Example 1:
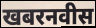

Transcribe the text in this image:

खबरनवीस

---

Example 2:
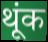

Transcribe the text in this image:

थूंक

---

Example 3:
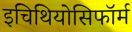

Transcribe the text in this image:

इचिथियोसिफॉर्म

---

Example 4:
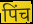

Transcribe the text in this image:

पिंच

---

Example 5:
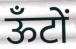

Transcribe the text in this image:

ऊँटों